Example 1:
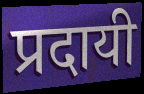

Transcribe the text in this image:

प्रदायी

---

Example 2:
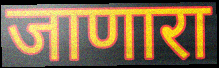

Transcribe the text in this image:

जाणारा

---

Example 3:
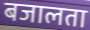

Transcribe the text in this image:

बजालता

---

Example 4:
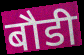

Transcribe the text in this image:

बौडी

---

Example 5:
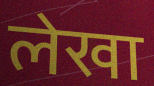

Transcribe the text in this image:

लेखा